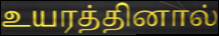
உயரத்தினால்